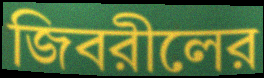
জিবরীলের